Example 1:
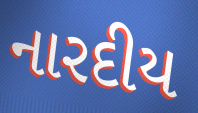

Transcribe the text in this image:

નારદીય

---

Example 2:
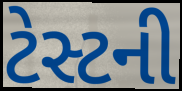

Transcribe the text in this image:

ટેસ્ટની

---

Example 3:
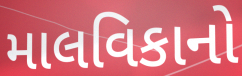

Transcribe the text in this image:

માલવિકાનો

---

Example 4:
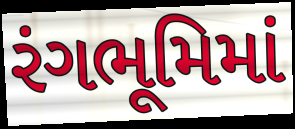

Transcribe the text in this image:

રંગભૂમિમાં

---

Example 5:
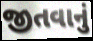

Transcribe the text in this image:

જીતવાનું